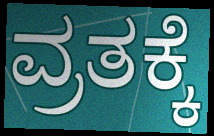
ವ್ರತಕ್ಕೆ